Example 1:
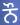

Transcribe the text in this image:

ਨੌ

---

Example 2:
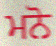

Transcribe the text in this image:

ਮਨੋ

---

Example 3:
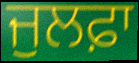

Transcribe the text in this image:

ਜੁਲਫ਼ਾ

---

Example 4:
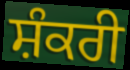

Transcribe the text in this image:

ਸ਼ੰਕਰੀ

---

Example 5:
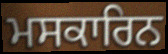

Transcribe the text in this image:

ਮਸਕਾਰਿਨ